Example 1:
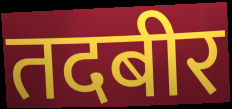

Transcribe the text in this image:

तदबीर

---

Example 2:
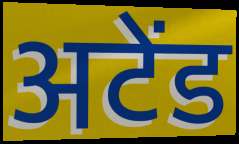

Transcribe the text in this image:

अटेंड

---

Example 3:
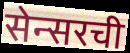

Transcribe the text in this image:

सेन्सरची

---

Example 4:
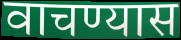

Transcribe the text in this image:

वाचण्यास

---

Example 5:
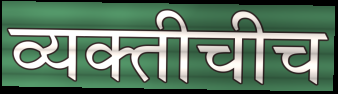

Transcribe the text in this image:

व्यक्तीचीच